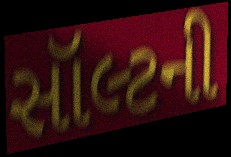
સૉલ્ટની